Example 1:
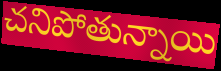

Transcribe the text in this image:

చనిపోతున్నాయి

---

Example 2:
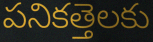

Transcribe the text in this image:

పనికత్తెలకు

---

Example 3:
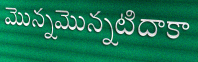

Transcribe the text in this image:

మొన్నమొన్నటిదాకా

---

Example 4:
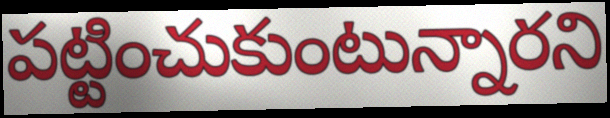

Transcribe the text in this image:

పట్టించుకుంటున్నారని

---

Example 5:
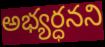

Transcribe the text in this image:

అభ్యర్ధనని